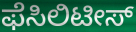
ಫೆಸಿಲಿಟೀಸ್